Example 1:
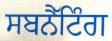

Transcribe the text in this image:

ਸਬਨੈੱਟਿੰਗ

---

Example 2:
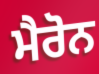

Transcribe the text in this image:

ਮੈਰੋਨ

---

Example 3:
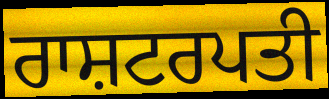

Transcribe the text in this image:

ਰਾਸ਼ਟਰਪਤੀ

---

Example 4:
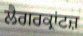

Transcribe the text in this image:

ਲੈਗਰਕ੍ਰਾਂਟਜ਼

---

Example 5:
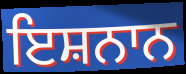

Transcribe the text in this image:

ਇਸ਼ਨਾਨ